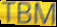
TBM